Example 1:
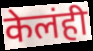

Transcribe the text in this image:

केलंही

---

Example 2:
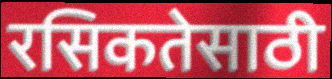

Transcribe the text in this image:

रसिकतेसाठी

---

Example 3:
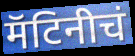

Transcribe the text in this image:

मॅटिनीचं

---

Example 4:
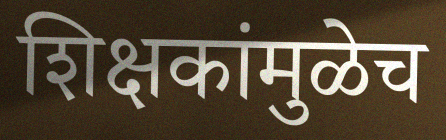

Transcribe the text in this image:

शिक्षकांमुळेच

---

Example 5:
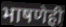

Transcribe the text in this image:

भाषणेही